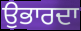
ਉਭਾਰਦਾ